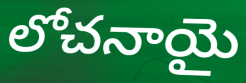
లోచనాయై